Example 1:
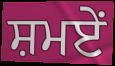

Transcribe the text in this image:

ਸ਼ਮਏਂ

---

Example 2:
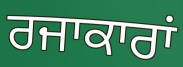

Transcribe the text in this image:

ਰਜਾਕਾਰਾਂ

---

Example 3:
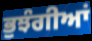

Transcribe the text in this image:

ਭੁਝੰਗੀਆਂ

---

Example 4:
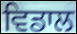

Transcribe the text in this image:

ਵਿਡਾਲ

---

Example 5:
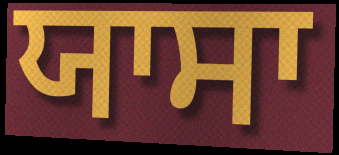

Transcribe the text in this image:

ਯਾਸਾ